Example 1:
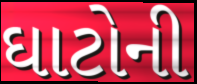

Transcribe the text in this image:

ઘાટોની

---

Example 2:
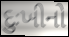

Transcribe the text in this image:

દુઃખીનો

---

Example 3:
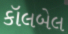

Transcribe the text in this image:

કૉલબેલ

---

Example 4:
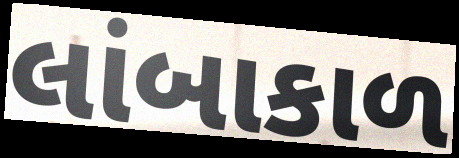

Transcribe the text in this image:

લાંબાકાળ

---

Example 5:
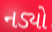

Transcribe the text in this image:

નડ્યો